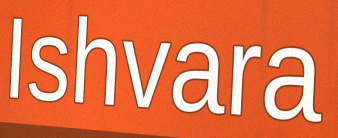
Ishvara